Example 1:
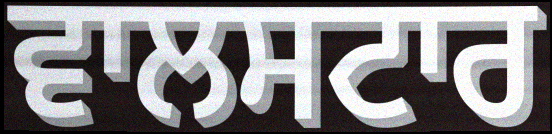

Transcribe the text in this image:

ਵਾਲਸਟਾਰ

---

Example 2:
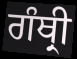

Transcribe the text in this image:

ਗੰਥ੍ਰੀ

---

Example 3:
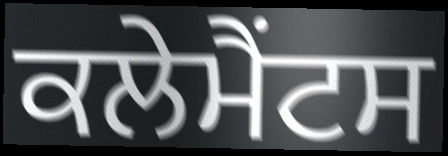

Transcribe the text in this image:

ਕਲੇਮੈਂਟਸ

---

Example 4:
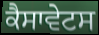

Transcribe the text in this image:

ਕੈਸਾਵੇਟਸ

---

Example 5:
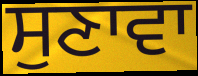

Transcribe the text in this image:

ਸੁਣਾਵਾ